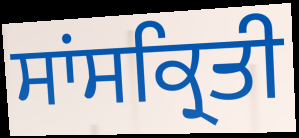
ਸਾਂਸਕ੍ਰਿਤੀ